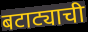
बटाट्याची